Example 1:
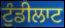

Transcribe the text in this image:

ਟੁੰਡੀਲਾਟ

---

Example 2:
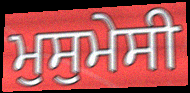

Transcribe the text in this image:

ਮੁਸੁਮੇਸੀ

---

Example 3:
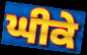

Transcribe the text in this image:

ਘੀਕੇ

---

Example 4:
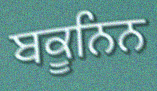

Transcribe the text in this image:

ਬਕੂਨਿਨ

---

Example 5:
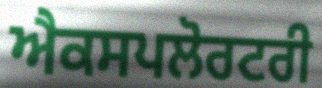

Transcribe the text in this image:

ਐਕਸਪਲੋਰਟਰੀ